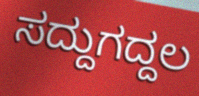
ಸದ್ದುಗದ್ದಲ